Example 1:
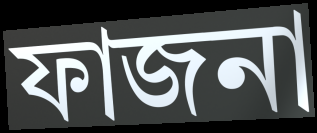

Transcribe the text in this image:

ফাজনা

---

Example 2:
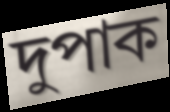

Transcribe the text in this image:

দুপাক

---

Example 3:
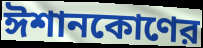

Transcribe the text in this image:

ঈশানকোণের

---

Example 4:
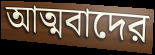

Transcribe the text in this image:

আত্মবাদের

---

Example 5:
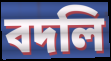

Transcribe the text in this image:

বদলি